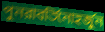
পুনরাবর্তিনোহর্জুন